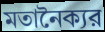
মতানৈক্যর